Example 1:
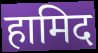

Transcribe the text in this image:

हामिद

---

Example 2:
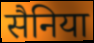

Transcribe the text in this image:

सैनिया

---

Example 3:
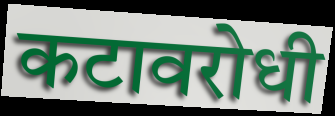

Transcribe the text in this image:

कटावरोधी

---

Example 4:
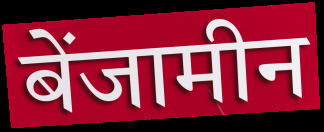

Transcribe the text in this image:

बेंजामीन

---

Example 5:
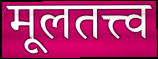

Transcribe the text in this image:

मूलतत्त्व